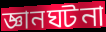
জ্ঞানঘটনা